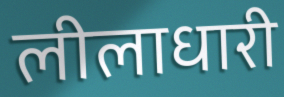
लीलाधारी